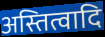
अस्तित्वादि